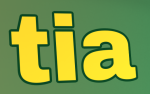
tia